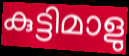
കുട്ടിമാളു